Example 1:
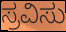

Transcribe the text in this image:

ಸ್ರವಿಸು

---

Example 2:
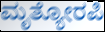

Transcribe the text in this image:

ಮೃತ್ಯೋರಪಿ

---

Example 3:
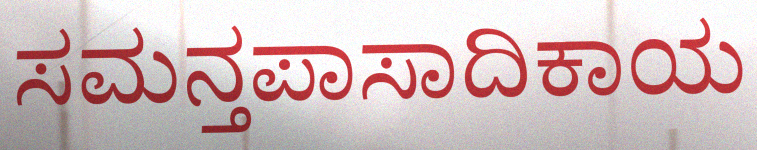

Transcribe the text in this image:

ಸಮನ್ತಪಾಸಾದಿಕಾಯ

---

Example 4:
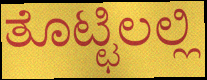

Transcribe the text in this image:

ತೊಟ್ಟಿಲಲ್ಲಿ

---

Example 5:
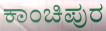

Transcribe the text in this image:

ಕಾಂಚಿಪುರ